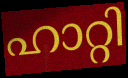
ഹാറ്റി